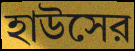
হাউসের